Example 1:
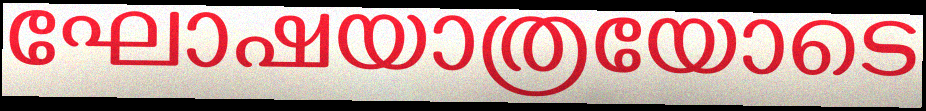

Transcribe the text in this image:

ഘോഷയാത്രയോടെ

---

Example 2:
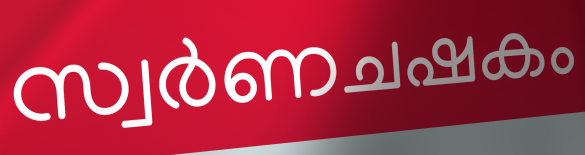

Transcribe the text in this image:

സ്വർണചഷകം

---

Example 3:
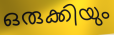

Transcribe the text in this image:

ഒരുക്കിയും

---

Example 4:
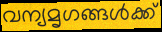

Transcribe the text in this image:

വന്യമൃഗങ്ങൾക്ക്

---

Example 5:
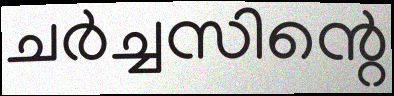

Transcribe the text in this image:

ചർച്ചസിന്റെ